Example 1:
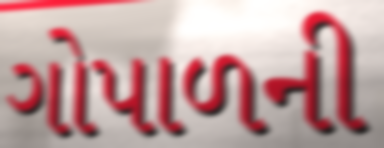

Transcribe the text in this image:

ગોપાળની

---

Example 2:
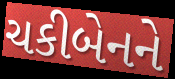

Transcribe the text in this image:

ચકીબેનને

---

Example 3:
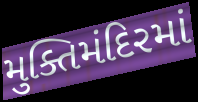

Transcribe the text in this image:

મુક્તિમંદિરમાં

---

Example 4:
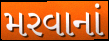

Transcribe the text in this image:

મરવાનાં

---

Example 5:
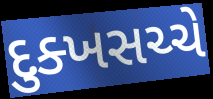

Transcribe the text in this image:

દુક્ખસચ્ચે